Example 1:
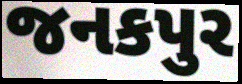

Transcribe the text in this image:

જનકપુર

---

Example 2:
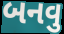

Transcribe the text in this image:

બનવુ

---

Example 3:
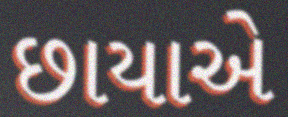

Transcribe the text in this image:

છાયાએ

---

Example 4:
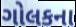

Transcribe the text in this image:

ગોલકના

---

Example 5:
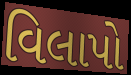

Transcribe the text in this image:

વિલાપો